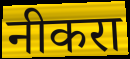
नीकरा